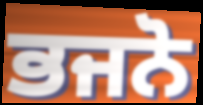
ਭਜਨੋ